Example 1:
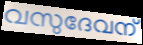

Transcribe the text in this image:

വസുദേവന്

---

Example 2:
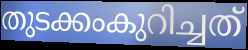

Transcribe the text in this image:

തുടക്കംകുറിച്ചത്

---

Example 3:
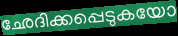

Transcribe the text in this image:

ഛേദിക്കപ്പെടുകയോ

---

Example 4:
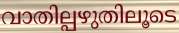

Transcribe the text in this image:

വാതില്പഴുതിലൂടെ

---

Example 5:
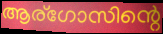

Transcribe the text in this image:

ആര്ഗോസിന്റെ